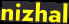
nizhal